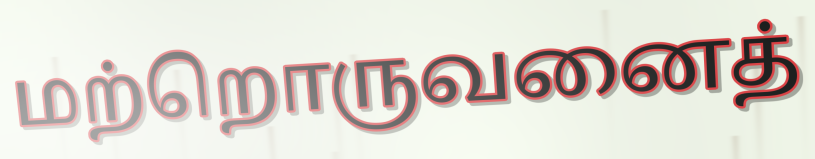
மற்றொருவனைத்